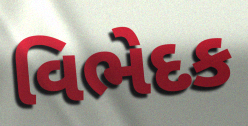
વિભેદક